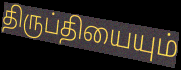
திருப்தியையும்